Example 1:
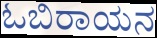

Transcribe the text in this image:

ಓಬಿರಾಯನ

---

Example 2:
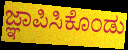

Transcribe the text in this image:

ಜ್ಞಾಪಿಸಿಕೊಂಡು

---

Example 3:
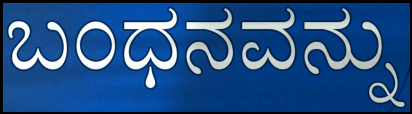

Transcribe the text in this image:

ಬಂಧನವನ್ನು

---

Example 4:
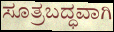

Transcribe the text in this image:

ಸೂತ್ರಬದ್ಧವಾಗಿ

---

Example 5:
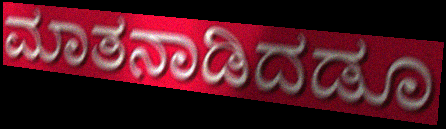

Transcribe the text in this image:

ಮಾತನಾಡಿದಡೂ